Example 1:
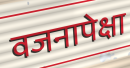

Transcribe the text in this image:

वजनापेक्षा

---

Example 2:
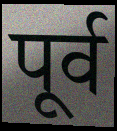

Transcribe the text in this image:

पूर्व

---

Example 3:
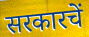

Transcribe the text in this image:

सरकारचें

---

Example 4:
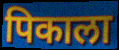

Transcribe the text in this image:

पिकाला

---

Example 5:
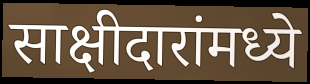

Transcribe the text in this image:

साक्षीदारांमध्ये